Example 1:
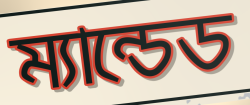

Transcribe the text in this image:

ম্যান্ডেড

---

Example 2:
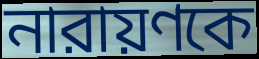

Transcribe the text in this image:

নারায়ণকে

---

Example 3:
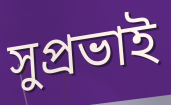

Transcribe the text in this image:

সুপ্রভাই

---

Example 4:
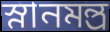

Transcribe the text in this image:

স্নানমন্ত্র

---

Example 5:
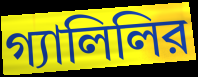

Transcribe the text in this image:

গ্যালিলির